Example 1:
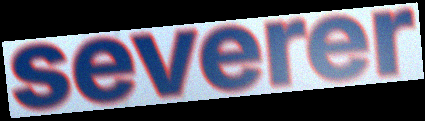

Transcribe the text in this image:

severer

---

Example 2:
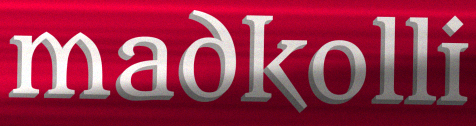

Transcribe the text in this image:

madkolli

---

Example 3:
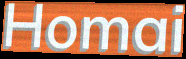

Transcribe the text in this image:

Homai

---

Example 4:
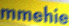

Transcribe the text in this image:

mmehie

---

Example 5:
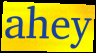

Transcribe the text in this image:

ahey